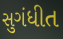
સુગંધીત